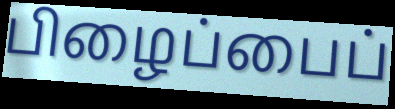
பிழைப்பைப்